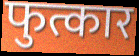
फुत्कार